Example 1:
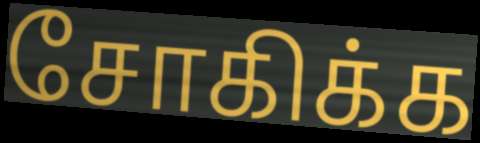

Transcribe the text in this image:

சோகிக்க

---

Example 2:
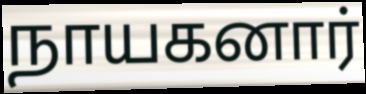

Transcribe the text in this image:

நாயகனார்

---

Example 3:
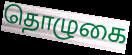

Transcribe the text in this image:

தொழுகை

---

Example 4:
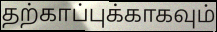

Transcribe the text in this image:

தற்காப்புக்காகவும்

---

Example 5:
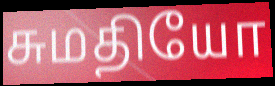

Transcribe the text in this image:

சுமதியோ